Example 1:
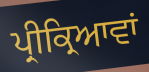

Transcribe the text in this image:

ਪ੍ਰੀਕ੍ਰਿਆਵਾਂ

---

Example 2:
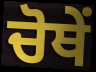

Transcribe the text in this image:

ਚੋਥੇਂ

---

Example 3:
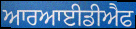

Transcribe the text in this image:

ਆਰਆਈਡੀਐਫ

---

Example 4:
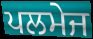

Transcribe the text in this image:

ਪਲਮੇਜ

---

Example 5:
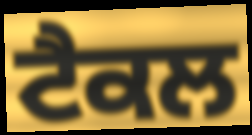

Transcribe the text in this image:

ਟੈਕਲ